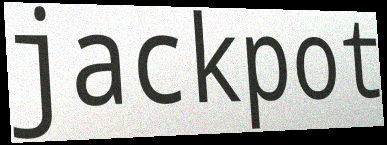
jackpot